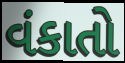
વંકાતો